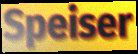
Speiser